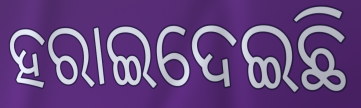
ହରାଇଦେଇଛି